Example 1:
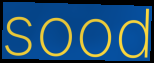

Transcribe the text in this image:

sood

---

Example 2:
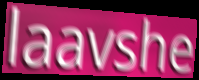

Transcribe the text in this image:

laavshe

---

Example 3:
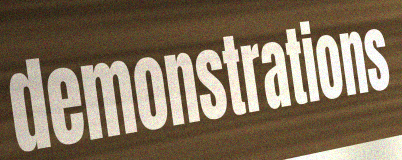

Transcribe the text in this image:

demonstrations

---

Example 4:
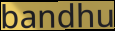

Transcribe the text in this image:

bandhu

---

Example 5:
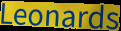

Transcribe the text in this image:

Leonards